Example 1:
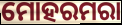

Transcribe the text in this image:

ମୋହରମରା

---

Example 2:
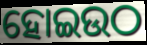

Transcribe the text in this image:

ହୋଇଉଠ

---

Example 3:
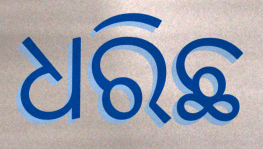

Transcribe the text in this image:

ଧରିଛ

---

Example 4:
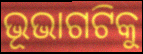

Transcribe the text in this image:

ଭୂଭାଗଟିକୁ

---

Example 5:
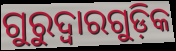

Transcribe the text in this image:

ଗୁରୁଦ୍ବାରଗୁଡ଼ିକ